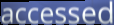
accessed